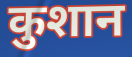
कुशान